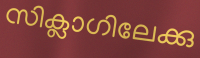
സിക്ലാഗിലേക്കു